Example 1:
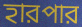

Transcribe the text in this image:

হারপার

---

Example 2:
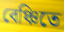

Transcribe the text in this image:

বেঞ্চিতে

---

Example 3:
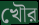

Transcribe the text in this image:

খৌর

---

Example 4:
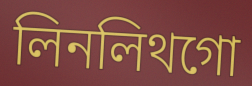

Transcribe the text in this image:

লিনলিথগো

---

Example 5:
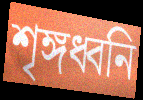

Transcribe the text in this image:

শৃঙ্গধ্বনি